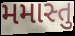
મમાસ્તુ